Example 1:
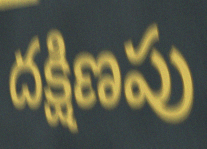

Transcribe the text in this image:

దక్షిణపు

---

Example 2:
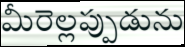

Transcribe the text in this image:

మీరెల్లప్పుడును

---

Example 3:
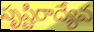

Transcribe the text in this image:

సృష్టిరాద్యేవ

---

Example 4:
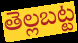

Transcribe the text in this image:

తెల్లబట్ట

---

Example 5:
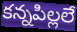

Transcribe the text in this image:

కన్నపిల్లలే